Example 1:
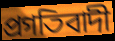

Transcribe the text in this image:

প্রগতিবাদী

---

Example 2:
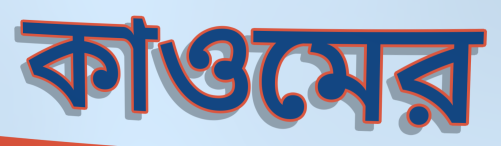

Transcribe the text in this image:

কাওমের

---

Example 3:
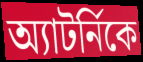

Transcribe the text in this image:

অ্যাটর্নিকে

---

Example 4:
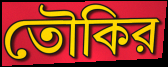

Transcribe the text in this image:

তৌকির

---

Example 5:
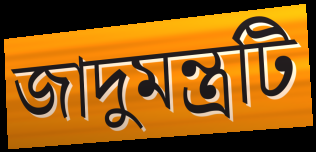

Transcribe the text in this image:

জাদুমন্ত্রটি